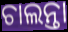
ଚାଲନ୍ତା